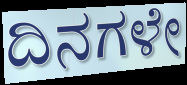
ದಿನಗಳೇ